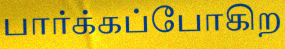
பார்க்கப்போகிற